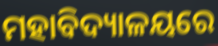
ମହାବିଦ୍ୟାଳୟରେ